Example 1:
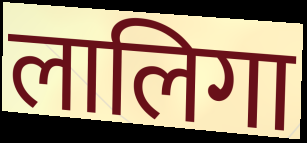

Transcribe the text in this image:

लालिगा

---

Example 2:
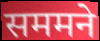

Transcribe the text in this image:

सममने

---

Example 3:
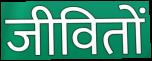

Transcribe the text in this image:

जीवितों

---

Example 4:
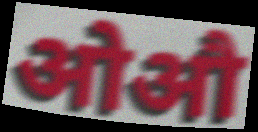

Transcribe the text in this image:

ओऔ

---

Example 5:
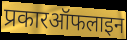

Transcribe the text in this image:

प्रकारऑफलाइन